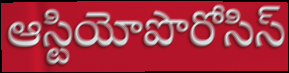
ఆస్టియోపొరోసిస్